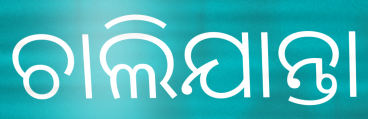
ଚାଲିଯାନ୍ତା